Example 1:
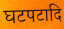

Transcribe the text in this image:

घटपटादि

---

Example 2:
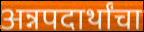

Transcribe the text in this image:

अन्नपदार्थांचा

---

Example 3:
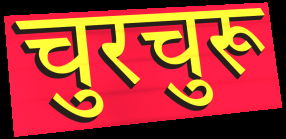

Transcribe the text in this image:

चुरचुरू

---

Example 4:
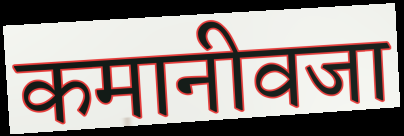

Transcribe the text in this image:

कमानीवजा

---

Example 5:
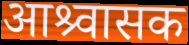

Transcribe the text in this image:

आश्र्वासक